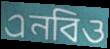
এনবিও